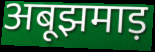
अबूझमाड़